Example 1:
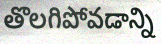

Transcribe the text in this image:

తొలగిపోవడాన్ని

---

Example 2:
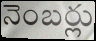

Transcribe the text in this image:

నెంబర్లు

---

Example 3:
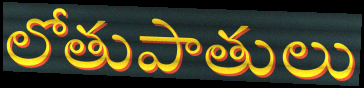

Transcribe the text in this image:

లోతుపాతులు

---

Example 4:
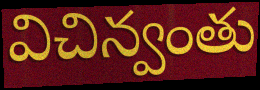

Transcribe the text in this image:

విచిన్వంతు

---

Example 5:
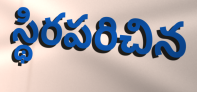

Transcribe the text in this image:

స్థిరపరిచిన